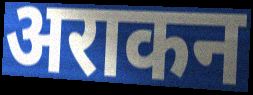
अराकन